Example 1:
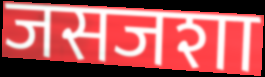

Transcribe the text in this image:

जसजशा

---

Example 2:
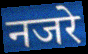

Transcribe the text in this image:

नजरे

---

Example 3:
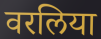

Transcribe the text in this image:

वरलिया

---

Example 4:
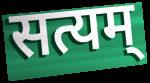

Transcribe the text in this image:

सत्यम्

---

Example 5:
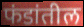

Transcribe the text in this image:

फंडांतील